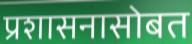
प्रशासनासोबत